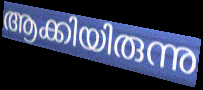
ആക്കിയിരുന്നു